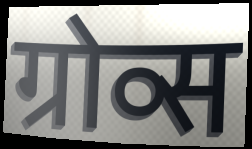
ग्रोव्स